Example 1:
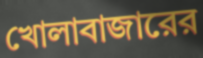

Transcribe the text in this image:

খোলাবাজারের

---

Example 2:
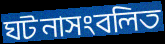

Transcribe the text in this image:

ঘটনাসংবলিত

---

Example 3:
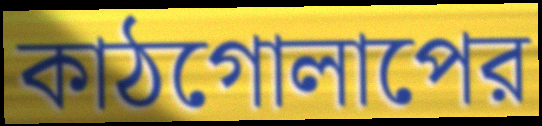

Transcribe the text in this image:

কাঠগোলাপের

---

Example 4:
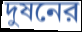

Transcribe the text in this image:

দুষনের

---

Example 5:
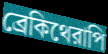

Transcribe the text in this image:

ব্রেকিথেরাপি